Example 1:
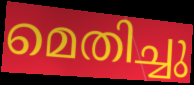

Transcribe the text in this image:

മെതിച്ചു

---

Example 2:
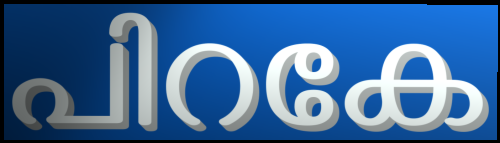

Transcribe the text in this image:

പിറകേ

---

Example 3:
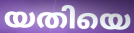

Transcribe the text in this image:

യതിയെ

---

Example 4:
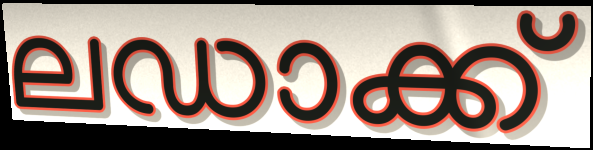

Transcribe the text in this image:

ലഡാക്ക്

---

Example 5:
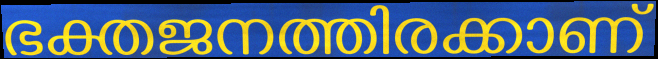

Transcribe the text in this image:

ഭക്തജനത്തിരക്കാണ്